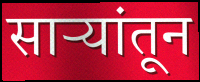
साऱ्यांतून